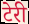
टेरी